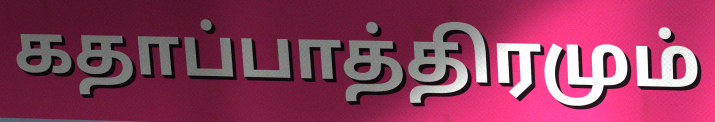
கதாப்பாத்திரமும்